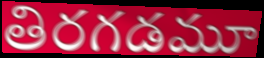
తిరగడమూ